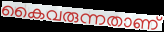
കൈവരുന്നതാണ്